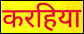
करहिया